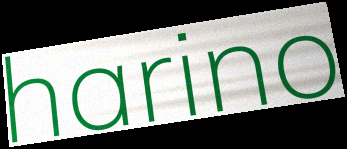
harino